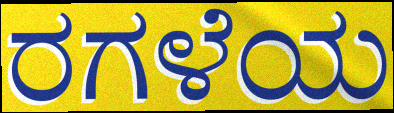
ರಗಳೆಯ